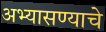
अभ्यासण्याचे